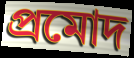
প্রমোদ